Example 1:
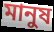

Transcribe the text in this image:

মানুষ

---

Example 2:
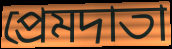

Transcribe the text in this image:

প্রেমদাতা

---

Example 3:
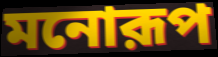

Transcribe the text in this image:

মনোরূপ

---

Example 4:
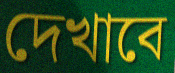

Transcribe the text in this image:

দেখাবে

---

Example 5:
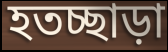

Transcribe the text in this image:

হতচ্ছাড়া